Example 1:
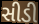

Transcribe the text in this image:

સીડી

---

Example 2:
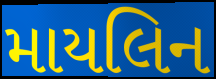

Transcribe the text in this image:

માયલિન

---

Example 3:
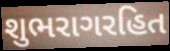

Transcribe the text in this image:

શુભરાગરહિત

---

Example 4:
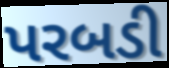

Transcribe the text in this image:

પરબડી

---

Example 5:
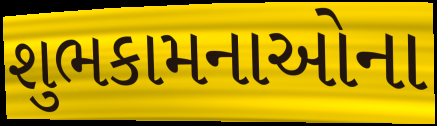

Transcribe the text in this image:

શુભકામનાઓના